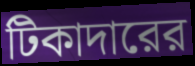
টিকাদারের